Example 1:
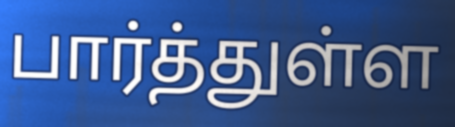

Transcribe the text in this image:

பார்த்துள்ள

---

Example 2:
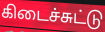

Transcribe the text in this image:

கிடைச்சுட்டு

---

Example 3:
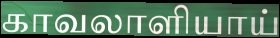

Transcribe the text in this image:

காவலாளியாய்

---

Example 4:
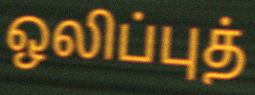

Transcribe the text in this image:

ஒலிப்புத்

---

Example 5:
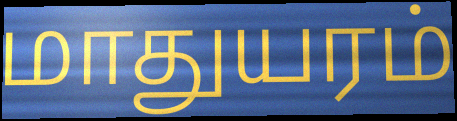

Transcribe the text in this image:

மாதுயரம்